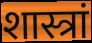
शास्त्रां